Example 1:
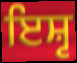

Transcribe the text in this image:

ਇਸ਼੍ਟ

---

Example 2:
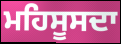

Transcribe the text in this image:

ਮਹਿਸੂਸਦਾ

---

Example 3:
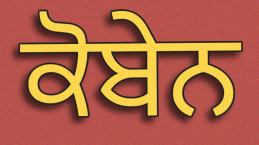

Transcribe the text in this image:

ਕੋਬੇਨ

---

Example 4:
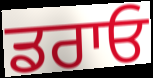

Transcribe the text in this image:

ਡਰਾਓ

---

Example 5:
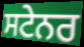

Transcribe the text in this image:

ਸਟੇਨਰ